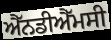
ਐੱਨਡੀਐੱਮਸੀ